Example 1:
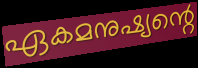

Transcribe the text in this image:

ഏകമനുഷ്യന്റെ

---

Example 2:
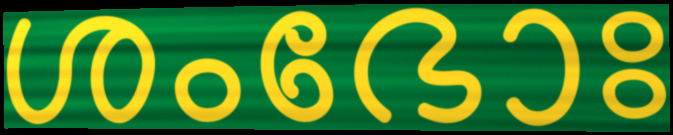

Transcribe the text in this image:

ശംഭോഃ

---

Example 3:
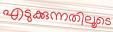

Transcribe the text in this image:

എടുക്കുന്നതിലൂടെ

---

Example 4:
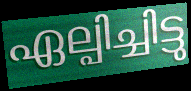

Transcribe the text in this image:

ഏല്പിച്ചിട്ടു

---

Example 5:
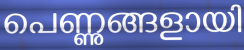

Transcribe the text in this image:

പെണ്ണുങ്ങളായി